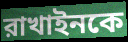
রাখাইনকে